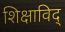
शिक्षाविद्